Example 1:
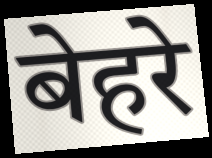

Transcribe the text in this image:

बेहरे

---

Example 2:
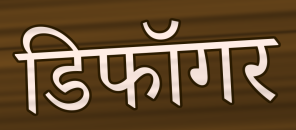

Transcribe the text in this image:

डिफॉगर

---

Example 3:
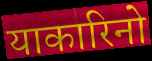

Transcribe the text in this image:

याकारिनो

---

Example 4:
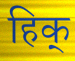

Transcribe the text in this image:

हिक्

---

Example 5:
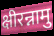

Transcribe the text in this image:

क्षीरन्नामु